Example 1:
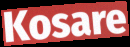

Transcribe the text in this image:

Kosare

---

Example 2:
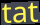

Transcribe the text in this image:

tat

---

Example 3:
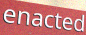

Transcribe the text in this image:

enacted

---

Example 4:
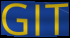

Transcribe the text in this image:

GIT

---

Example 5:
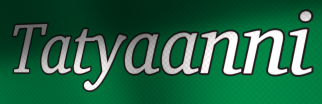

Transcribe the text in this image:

Tatyaanni